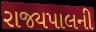
રાજ્યપાલની